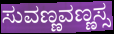
ಸುವಣ್ಣವಣ್ಣಸ್ಸ